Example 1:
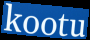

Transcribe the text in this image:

kootu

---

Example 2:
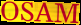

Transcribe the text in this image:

OSAM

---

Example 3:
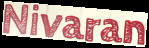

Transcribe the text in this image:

Nivaran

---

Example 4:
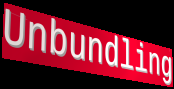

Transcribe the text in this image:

Unbundling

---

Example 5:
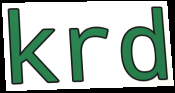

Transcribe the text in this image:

krd